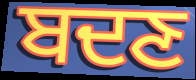
ਬਦਣ